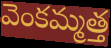
వెంకమ్మత్త